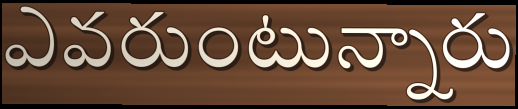
ఎవరుంటున్నారు